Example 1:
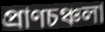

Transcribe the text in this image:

প্রাণচঞ্চলা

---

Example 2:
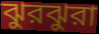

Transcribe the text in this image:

ঝুরঝুরা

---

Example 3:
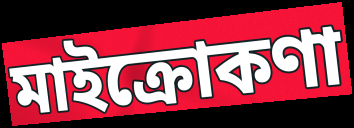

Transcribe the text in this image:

মাইক্রোকণা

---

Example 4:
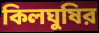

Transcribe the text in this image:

কিলঘুষির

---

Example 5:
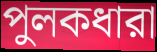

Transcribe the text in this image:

পুলকধারা